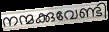
നന്മക്കുവേണ്ടി